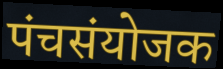
पंचसंयोजक